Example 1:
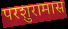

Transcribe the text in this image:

परशुरामास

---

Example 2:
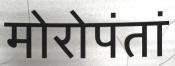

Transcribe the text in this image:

मोरोपंतां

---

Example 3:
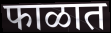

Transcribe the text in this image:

फाळात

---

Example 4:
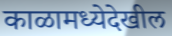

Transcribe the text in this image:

काळामध्येदेखील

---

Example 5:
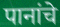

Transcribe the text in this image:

पानांचे